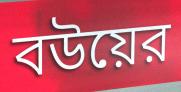
বউয়ের